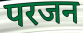
परजन